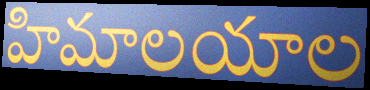
హిమాలయాల